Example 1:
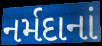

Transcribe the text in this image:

નર્મદાનાં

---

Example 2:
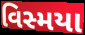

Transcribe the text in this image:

વિસ્મયા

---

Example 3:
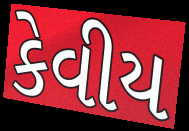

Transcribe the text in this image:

કેવીય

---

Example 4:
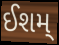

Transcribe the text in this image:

ઈશમ્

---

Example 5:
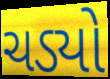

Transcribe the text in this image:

ચડ્યો